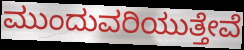
ಮುಂದುವರಿಯುತ್ತೇವೆ